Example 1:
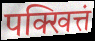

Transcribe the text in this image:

पक्खित्तं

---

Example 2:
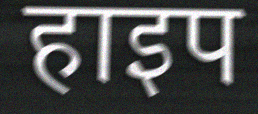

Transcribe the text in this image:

हाइप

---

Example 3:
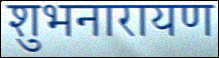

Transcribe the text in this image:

शुभनारायण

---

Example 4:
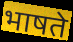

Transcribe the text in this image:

भाषते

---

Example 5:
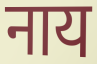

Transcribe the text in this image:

नाय